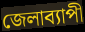
জেলাব্যাপী